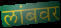
लांबवर